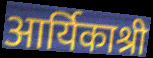
आर्यिकाश्री